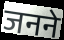
जनने